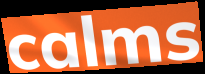
calms